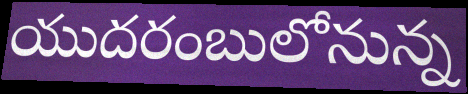
యుదరంబులోనున్న